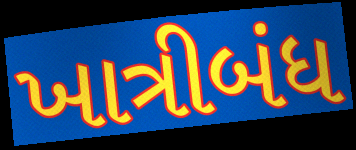
ખાત્રીબંધ